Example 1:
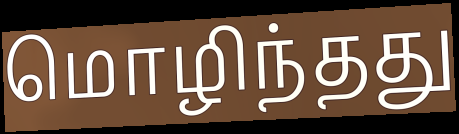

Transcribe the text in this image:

மொழிந்தது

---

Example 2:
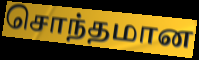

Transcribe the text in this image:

சொந்தமான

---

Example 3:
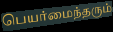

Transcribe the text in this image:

பெயர்மைந்தரும்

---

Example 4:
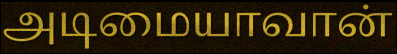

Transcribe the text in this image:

அடிமையாவான்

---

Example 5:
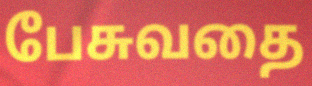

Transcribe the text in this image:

பேசுவதை